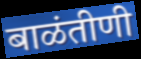
बाळंतीणी